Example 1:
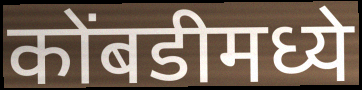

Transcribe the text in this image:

कोंबडीमध्ये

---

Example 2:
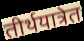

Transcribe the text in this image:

तीर्थयात्रेत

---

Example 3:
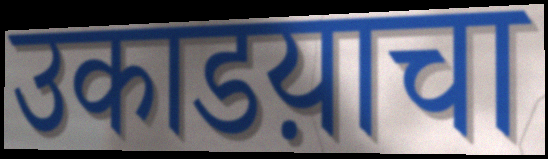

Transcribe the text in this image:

उकाडय़ाचा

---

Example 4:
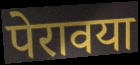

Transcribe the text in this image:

पेरावया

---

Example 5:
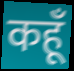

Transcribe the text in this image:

कहूँ